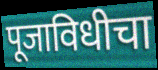
पूजाविधीचा